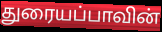
துரையப்பாவின்